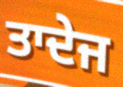
ਤਾਦੇਜ